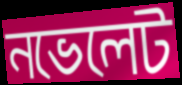
নভেলেট